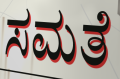
ಸಮತೆ